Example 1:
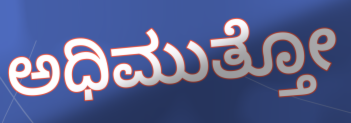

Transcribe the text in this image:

ಅಧಿಮುತ್ತೋ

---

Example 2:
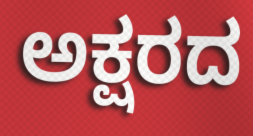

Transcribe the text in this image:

ಅಕ್ಷರದ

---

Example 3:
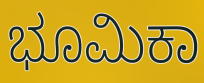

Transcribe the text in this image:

ಭೂಮಿಕಾ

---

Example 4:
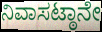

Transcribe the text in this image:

ನಿವಾಸಟ್ಠಾನೇ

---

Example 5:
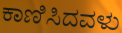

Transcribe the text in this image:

ಕಾಣಿಸಿದವಳು